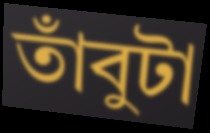
তাঁবুটা